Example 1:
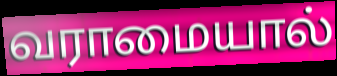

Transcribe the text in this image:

வராமையால்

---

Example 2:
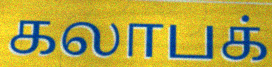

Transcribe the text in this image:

கலாபக்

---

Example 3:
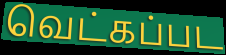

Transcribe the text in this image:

வெட்கப்பட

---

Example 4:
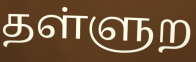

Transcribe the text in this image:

தள்ளுற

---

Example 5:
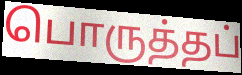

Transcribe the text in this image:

பொருத்தப்